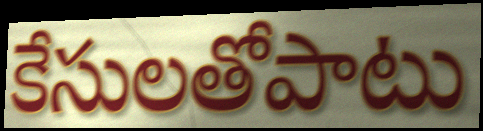
కేసులతోపాటు